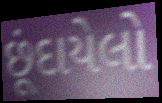
છૂંદાયેલો